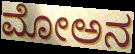
ಮೋಅನ